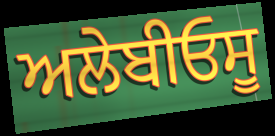
ਅਲੇਬੀਓਸੂ